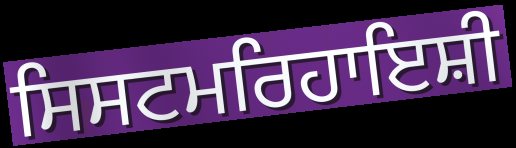
ਸਿਸਟਮਰਿਹਾਇਸ਼ੀ